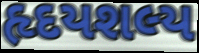
હૃદયશલ્ય